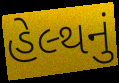
હેલ્થનું